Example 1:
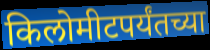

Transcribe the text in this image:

किलोमीटपर्यंतच्या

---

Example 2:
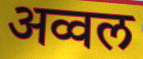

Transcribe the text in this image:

अव्वल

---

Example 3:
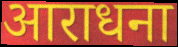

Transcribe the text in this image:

आराधना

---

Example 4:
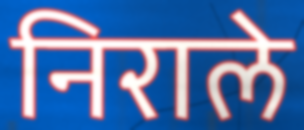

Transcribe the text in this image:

निराले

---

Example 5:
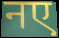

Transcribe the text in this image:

नए